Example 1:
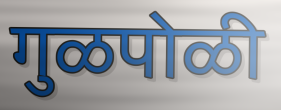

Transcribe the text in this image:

गुळपोळी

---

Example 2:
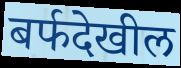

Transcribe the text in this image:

बर्फदेखील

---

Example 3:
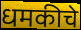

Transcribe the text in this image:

धमकीचे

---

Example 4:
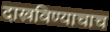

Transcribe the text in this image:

दाखविण्याचाच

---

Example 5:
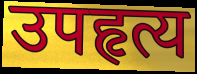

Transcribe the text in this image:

उपहृत्य